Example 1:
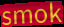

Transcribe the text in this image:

smok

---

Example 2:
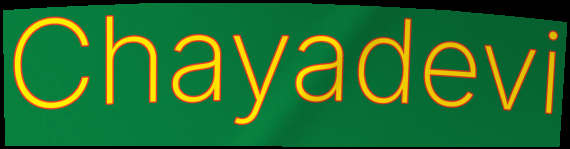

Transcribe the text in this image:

Chayadevi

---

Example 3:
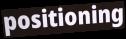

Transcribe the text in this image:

positioning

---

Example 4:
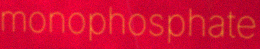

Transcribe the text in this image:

monophosphate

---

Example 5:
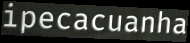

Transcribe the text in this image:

ipecacuanha